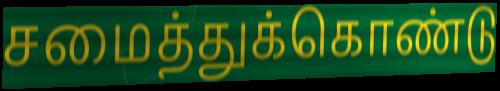
சமைத்துக்கொண்டு